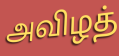
அவிழத்